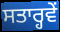
ਸਤਾਰ੍ਹਵੇਂ